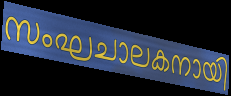
സംഘചാലകനായി